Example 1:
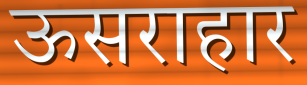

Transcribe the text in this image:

ऊसराहार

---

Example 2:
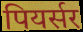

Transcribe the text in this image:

पियर्सर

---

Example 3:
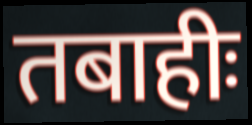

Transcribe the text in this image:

तबाहीः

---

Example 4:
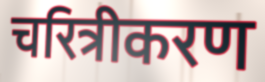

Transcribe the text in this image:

चरित्रीकरण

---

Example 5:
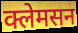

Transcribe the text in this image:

क्लेमसन